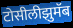
टोसीलीझुमॅब